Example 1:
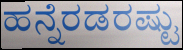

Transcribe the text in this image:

ಹನ್ನೆರಡರಷ್ಟು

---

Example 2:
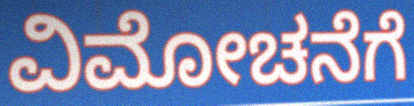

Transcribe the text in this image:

ವಿಮೋಚನೆಗೆ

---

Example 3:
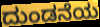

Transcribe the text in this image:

ದುಂಡನೆಯ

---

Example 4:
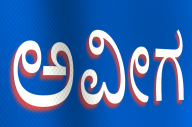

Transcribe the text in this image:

ಅವೀಗ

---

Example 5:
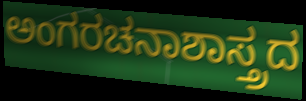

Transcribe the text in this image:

ಅಂಗರಚನಾಶಾಸ್ತ್ರದ